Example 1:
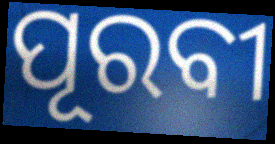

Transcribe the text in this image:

ପୂରବୀ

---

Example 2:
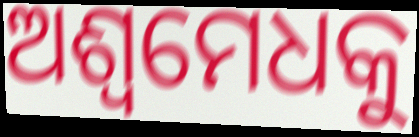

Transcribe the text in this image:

ଅଶ୍ୱମେଧକୁ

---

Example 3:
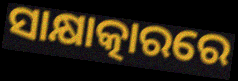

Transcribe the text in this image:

ସାକ୍ଷାତ୍କାରରେ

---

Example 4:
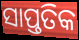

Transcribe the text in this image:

ସାପ୍ତତିକ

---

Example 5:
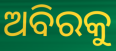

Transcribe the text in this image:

ଅବିରକୁ